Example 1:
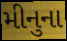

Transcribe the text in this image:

મીનુના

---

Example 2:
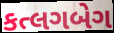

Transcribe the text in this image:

કત્લગબેગ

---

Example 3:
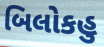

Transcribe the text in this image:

બિલોકહુ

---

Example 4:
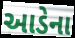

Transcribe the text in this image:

આડેના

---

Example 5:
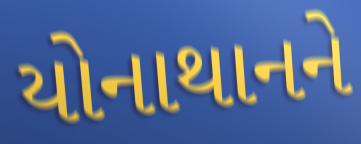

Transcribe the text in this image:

યોનાથાનને